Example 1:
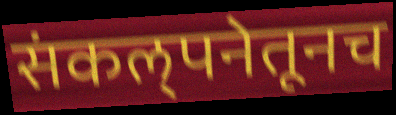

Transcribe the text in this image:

संकल्पनेतूनच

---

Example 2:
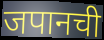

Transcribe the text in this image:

जपानची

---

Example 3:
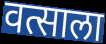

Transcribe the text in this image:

वत्साला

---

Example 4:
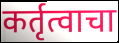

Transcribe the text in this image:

कर्तृत्वाचा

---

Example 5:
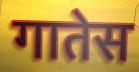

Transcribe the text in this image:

गातेस